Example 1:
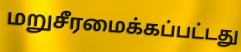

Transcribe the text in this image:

மறுசீரமைக்கப்பட்டது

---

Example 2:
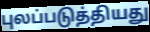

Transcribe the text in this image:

புலப்படுத்தியது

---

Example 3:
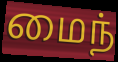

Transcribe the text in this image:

மைந்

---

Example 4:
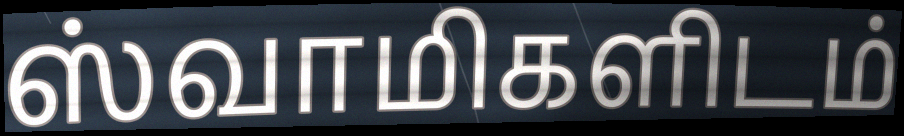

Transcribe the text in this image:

ஸ்வாமிகளிடம்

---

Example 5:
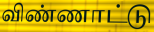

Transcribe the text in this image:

விண்ணாட்டு